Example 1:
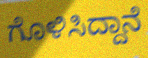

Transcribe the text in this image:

ಗೊಳಿಸಿದ್ದಾನೆ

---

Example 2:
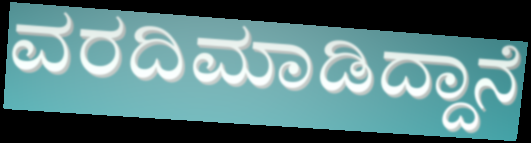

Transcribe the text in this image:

ವರದಿಮಾಡಿದ್ದಾನೆ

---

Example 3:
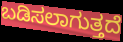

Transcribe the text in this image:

ಬಡಿಸಲಾಗುತ್ತದೆ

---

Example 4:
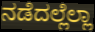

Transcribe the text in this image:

ನಡೆದಲ್ಲೆಲ್ಲಾ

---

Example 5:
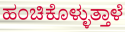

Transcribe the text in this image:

ಹಂಚಿಕೊಳ್ಳುತ್ತಾಳೆ